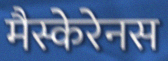
मैस्केरेनस